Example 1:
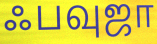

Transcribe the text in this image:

ஃபவுஜா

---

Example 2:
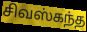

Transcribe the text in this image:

சிவஸ்கந்த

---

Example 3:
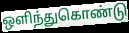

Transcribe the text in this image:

ஒளிந்துகொண்டு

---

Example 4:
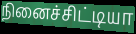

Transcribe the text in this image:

நினைச்சிட்டியா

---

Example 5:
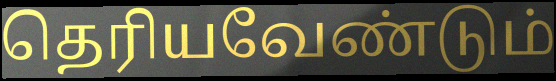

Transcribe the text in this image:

தெரியவேண்டும்